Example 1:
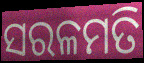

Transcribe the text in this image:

ସରଳମତି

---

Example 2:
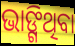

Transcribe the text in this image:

ଭାଙ୍ଗିଥିବା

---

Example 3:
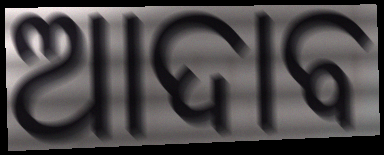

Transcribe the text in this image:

ଆଦାବ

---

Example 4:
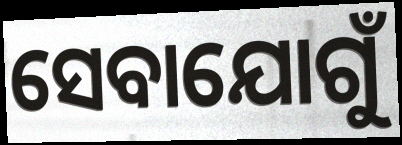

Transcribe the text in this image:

ସେବାଯୋଗୁଁ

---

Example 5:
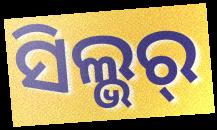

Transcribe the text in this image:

ସିଲ୍ଭର୍